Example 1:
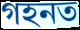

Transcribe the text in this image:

গহনত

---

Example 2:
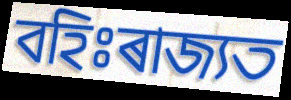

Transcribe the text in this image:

বহিঃৰাজ্যত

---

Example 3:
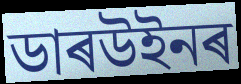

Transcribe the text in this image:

ডাৰউইনৰ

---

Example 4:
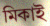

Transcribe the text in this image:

মিকাই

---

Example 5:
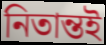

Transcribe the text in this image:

নিতান্তই